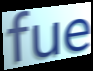
fue